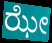
ಝೇ